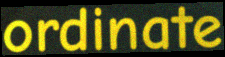
ordinate